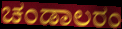
ಚಂಡಾಲರಂ